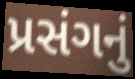
પ્રસંગનું